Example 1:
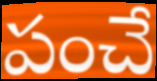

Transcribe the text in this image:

పంచే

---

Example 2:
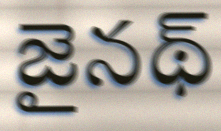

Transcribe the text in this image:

జైనథ్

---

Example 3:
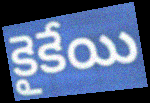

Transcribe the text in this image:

కైకేయి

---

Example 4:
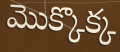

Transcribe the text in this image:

మొక్కొక్క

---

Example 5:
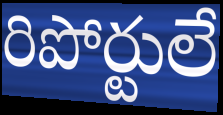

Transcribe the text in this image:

రిపోర్టులే